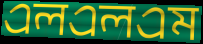
এলএলএম